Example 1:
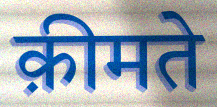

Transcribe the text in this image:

क़ीमते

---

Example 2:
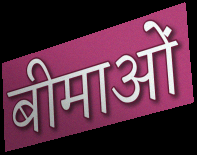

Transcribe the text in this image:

बीमाओं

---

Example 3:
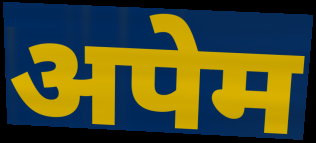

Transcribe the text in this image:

अपेम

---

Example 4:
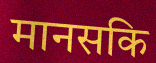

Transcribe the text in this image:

मानसकि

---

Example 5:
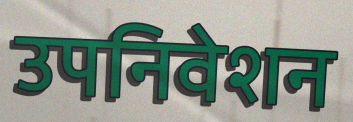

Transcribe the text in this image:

उपनिवेशन